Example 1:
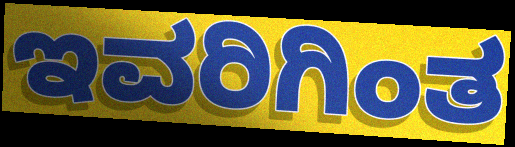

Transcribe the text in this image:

ಇವರಿಗಿಂತ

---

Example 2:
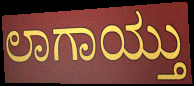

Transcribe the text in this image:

ಲಾಗಾಯ್ತು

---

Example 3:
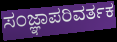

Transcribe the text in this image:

ಸಂಜ್ಞಾಪರಿವರ್ತಕ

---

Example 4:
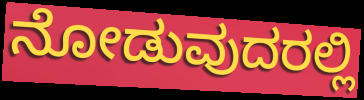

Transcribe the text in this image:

ನೋಡುವುದರಲ್ಲಿ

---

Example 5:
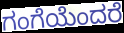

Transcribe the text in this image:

ಗಂಗೆಯೆಂದರೆ